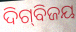
ଦିଗ୍‌ବିଜୟ